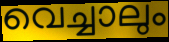
വെച്ചാലും